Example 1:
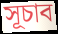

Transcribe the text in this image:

সূচাব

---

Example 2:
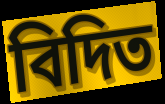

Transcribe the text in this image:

বিদিত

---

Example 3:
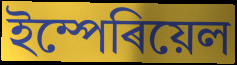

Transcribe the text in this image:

ইম্পেৰিয়েল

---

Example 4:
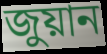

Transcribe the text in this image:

জুয়ান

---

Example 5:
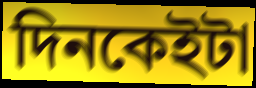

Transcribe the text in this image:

দিনকেইটা